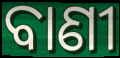
ବାଣୀ